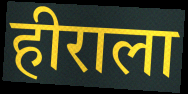
हीराला